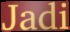
Jadi